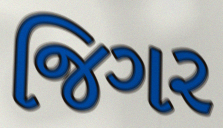
જિગર